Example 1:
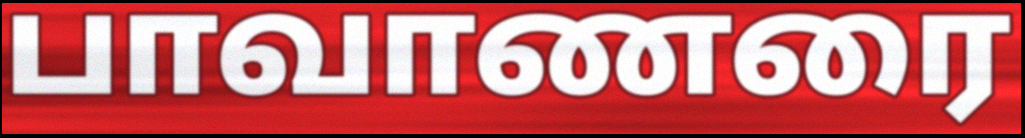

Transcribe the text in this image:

பாவாணரை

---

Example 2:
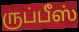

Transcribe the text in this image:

ருப்பீஸ்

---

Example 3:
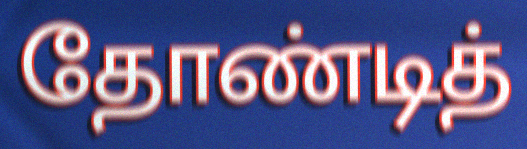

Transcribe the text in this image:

தோண்டித்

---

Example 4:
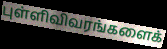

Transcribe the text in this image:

புள்ளிவிவரங்களைக்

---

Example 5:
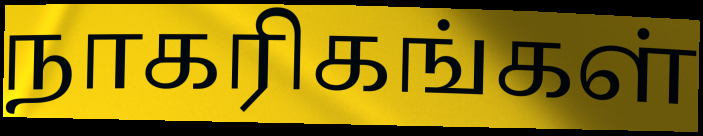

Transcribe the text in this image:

நாகரிகங்கள்